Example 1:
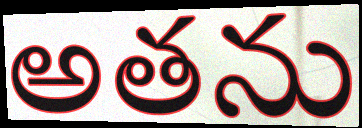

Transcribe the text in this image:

అతను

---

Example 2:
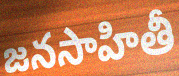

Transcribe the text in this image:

జనసాహితీ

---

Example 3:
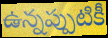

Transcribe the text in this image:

ఉన్నప్పుటికీ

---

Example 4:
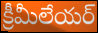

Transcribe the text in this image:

క్రీమీలేయర్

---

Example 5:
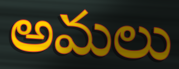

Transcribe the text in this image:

అమలు